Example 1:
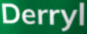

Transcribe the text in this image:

Derryl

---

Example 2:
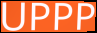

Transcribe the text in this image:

UPPP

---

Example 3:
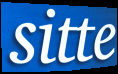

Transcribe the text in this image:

sitte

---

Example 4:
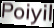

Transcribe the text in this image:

Poiyil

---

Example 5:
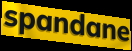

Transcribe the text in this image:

spandane